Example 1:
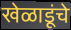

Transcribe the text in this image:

खेळाडूंचे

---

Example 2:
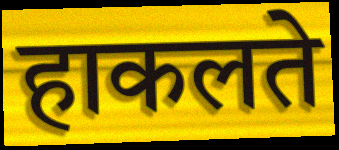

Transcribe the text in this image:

हाकलते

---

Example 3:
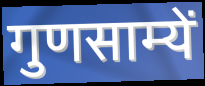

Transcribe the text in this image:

गुणसाम्यें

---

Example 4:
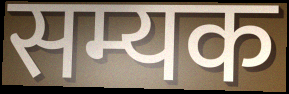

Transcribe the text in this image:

सम्‍यक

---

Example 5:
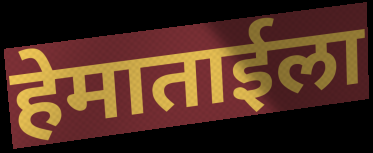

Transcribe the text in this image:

हेमाताईला